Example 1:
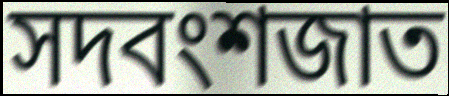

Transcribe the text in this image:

সদবংশজাত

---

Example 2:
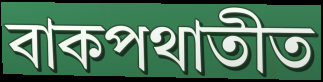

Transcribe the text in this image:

বাকপথাতীত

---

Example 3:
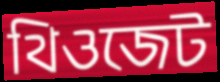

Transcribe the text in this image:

থিওজেট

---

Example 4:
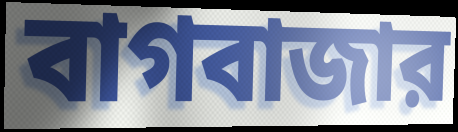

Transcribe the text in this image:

বাগবাজার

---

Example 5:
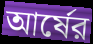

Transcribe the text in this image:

আর্ষের